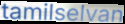
tamilselvan